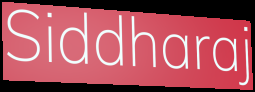
Siddharaj